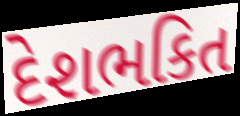
દેશભકિત